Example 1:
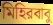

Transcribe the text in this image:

মিহিরবাবু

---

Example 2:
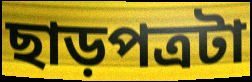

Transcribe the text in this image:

ছাড়পত্রটা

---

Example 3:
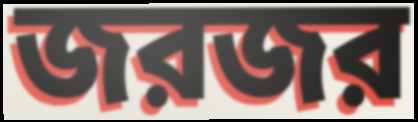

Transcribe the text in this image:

জরজর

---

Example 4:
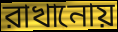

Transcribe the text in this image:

রাখানোয়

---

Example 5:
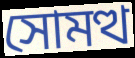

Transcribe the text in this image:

সোমত্থ